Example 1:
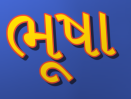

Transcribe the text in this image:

ભૂષા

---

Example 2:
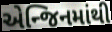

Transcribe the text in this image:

એન્જિનમાંથી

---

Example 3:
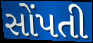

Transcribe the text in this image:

સોંપતી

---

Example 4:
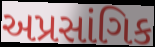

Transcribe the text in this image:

અપ્રસાંગિક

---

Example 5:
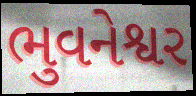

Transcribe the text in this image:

ભુવનેશ્વર